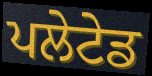
ਪਲੇਟੇਡ